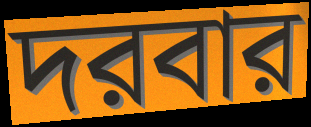
দরবার